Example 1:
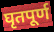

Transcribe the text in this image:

घृतपूर्ण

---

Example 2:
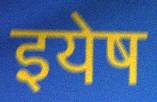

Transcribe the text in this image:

इयेष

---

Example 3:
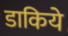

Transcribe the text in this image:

डाकिये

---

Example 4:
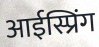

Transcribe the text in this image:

आईस्प्रिंग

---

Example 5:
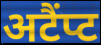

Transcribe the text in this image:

अटैंप्ट